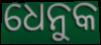
ଧେନୁକ